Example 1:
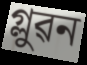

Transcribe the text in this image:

গ্লুৱন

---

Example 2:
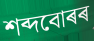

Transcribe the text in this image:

শব্দবোৰৰ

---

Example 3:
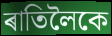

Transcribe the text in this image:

ৰাতিলৈকে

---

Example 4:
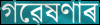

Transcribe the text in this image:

গৱেষণাৰ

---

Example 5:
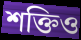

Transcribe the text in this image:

শক্তিও